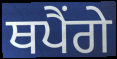
ਥਪੈਂਗੇ